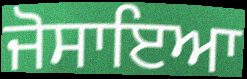
ਜੋਸਾਇਆ